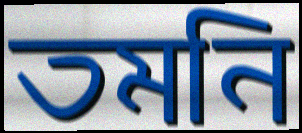
তমনি